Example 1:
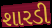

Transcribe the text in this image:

શારડી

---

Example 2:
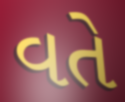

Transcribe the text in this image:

વતે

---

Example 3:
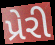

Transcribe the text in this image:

પ્રેરી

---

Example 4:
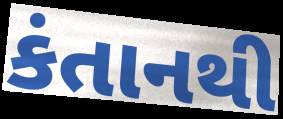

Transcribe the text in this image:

કંતાનથી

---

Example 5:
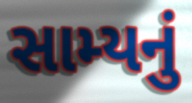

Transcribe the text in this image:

સામ્યનું